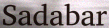
Sadabar